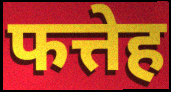
फत्तेह